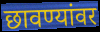
छावण्यांवर